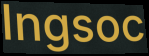
Ingsoc